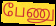
பேணு